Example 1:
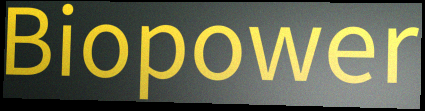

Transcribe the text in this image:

Biopower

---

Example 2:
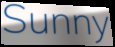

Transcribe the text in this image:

Sunny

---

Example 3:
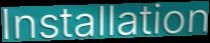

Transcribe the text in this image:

Installation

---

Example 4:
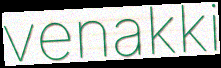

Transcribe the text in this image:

venakki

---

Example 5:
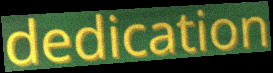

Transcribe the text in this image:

dedication